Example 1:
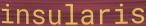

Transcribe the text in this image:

insularis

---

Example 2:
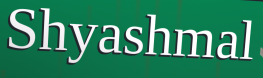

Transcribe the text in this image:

Shyashmal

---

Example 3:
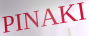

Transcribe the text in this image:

PINAKI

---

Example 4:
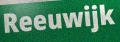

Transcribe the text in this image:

Reeuwijk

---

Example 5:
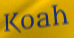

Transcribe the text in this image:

Koah